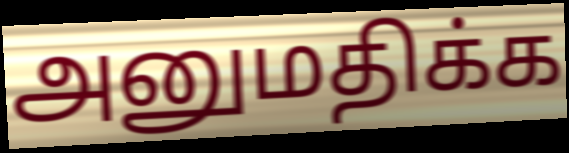
அனுமதிக்க